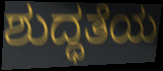
ಶುದ್ಧತೆಯ